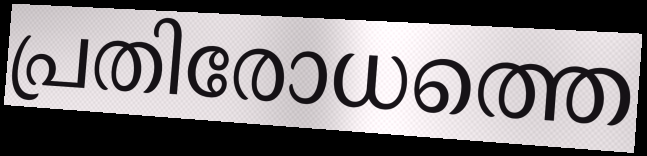
പ്രതിരോധത്തെ